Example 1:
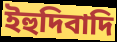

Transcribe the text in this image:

ইহুদিবাদি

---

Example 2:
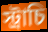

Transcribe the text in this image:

স্ট্রাচি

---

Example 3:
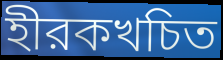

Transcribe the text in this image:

হীরকখচিত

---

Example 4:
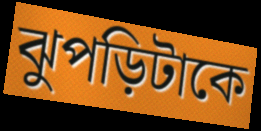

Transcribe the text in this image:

ঝুপড়িটাকে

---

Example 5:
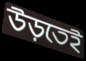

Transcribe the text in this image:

উড়তেই